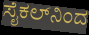
ಸೈಕಲ್‌ನಿಂದ